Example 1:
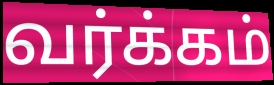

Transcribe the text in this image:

வர்க்கம்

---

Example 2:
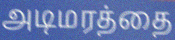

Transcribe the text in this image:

அடிமரத்தை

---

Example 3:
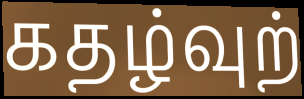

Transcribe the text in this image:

கதழ்வுற்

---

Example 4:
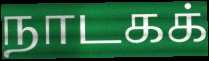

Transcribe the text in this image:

நாடகக்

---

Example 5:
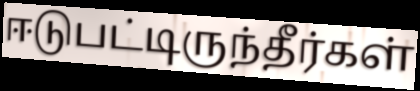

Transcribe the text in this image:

ஈடுபட்டிருந்தீர்கள்